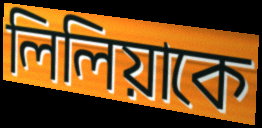
লিলিয়াকে